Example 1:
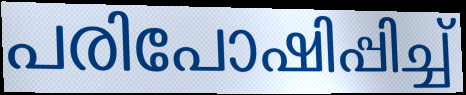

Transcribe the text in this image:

പരിപോഷിപ്പിച്ച്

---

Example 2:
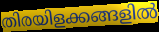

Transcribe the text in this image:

തിരയിളക്കങ്ങളിൽ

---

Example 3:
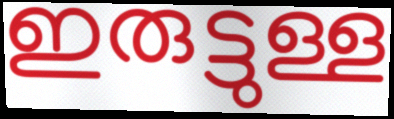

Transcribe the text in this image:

ഇരുട്ടുള്ള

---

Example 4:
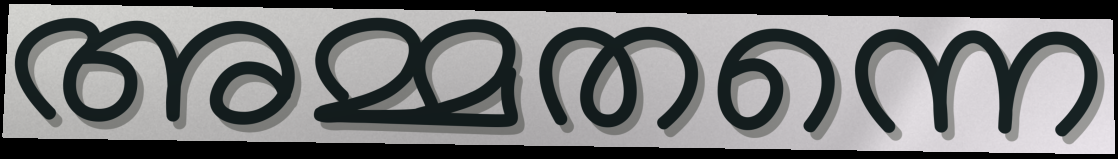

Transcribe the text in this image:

അമ്മതന്നെ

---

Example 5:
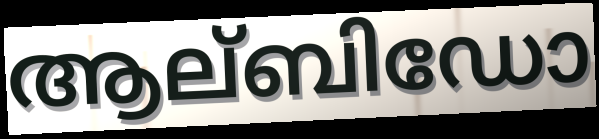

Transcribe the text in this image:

ആല്ബിഡോ